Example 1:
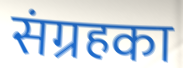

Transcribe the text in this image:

संग्रहका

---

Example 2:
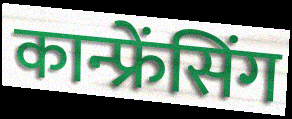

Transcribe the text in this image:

कान्फ्रेंसिंग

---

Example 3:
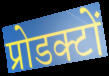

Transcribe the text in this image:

प्रोडक्टों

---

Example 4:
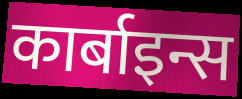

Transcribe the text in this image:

कार्बाइन्स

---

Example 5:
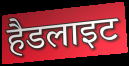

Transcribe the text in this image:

हैडलाइट